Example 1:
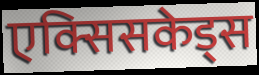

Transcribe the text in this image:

एक्सिसकेड्स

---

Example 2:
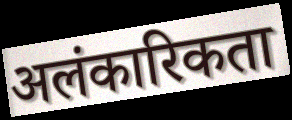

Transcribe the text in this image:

अलंकारिकता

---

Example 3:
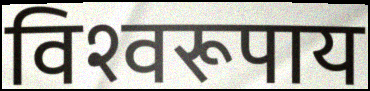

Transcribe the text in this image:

विश्वरूपाय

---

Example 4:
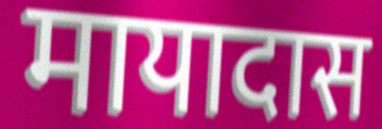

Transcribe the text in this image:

मायादास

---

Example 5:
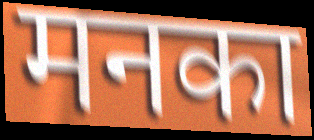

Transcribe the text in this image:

मनका